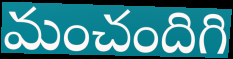
మంచందిగి